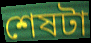
শেষটা